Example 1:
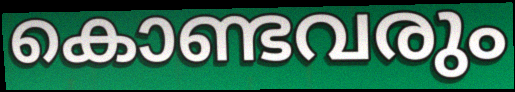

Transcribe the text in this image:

കൊണ്ടവരും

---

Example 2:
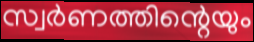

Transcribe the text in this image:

സ്വർണത്തിന്റെയും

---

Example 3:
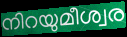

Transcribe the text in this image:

നിറയുമീശ്വര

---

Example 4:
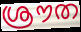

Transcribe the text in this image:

ശ്രൗത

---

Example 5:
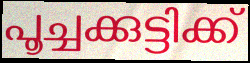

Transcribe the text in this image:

പൂച്ചക്കുട്ടിക്ക്